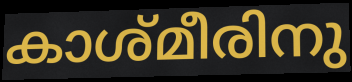
കാശ്മീരിനു